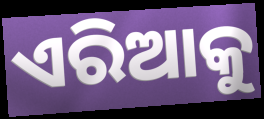
ଏରିଆକୁ